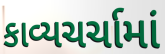
કાવ્યચર્ચામાં